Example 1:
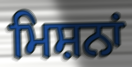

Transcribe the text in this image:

ਮਿਸ਼ਨਾਂ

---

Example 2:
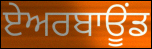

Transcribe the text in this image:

ਏਅਰਬਾਊਂਡ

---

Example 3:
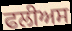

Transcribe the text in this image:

ਫਲੀਅਸ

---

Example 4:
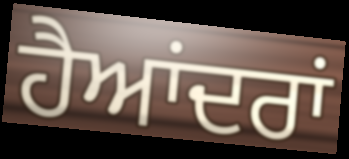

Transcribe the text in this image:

ਹੈਆਂਦਰਾਂ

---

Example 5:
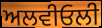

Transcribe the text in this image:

ਅਲਵੀਓਲੀ